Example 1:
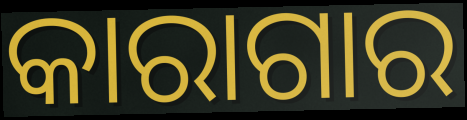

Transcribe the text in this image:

କାରାଗାର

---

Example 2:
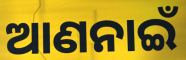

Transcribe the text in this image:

ଆଣନାଇଁ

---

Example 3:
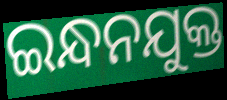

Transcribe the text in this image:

ଇନ୍ଧନଯୁକ୍ତ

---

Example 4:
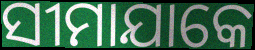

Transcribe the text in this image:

ସୀମାଯାକେ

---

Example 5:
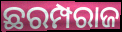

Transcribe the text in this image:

ଛରମ୍ପରାଜ